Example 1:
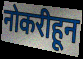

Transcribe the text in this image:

नोकरीहून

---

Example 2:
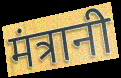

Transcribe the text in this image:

मंत्रानी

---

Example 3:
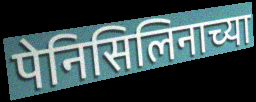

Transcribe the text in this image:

पेनिसिलिनाच्या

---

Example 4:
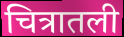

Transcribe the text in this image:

चित्रातली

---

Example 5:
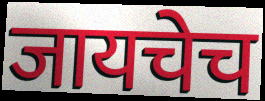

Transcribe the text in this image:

जायचेच